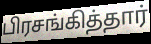
பிரசங்கித்தார்